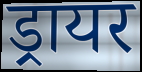
ड्रायर